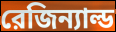
রেজিন্যাল্ড